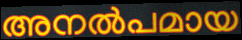
അനൽപമായ